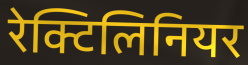
रेक्टिलिनियर